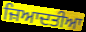
ਜ਼ਿਆਦਤੀਆ